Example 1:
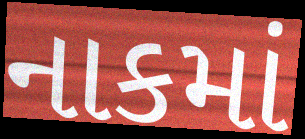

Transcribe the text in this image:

નાકમાં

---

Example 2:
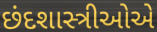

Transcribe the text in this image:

છંદશાસ્ત્રીઓએ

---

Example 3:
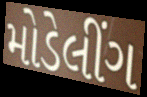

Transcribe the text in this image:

મોડેલીંગ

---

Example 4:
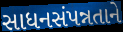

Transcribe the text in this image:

સાધનસંપન્નતાને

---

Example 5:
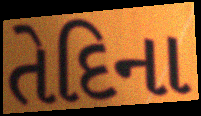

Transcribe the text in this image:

તેદિના